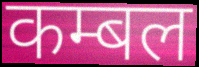
कम्बल